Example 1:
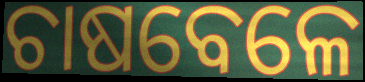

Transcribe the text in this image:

ଚାଷବେଳେ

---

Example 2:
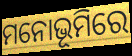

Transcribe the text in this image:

ମନୋଭୂମିରେ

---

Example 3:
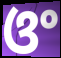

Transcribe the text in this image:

ଓଂ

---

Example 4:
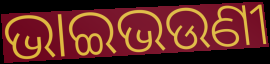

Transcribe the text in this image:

ଭାଇଭଉଣୀ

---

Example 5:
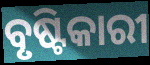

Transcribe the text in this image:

ବୃଷ୍ଟିକାରୀ